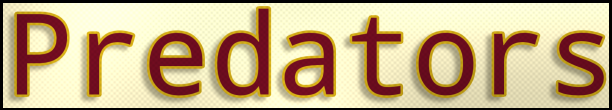
Predators